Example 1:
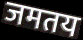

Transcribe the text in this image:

जमतय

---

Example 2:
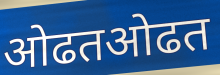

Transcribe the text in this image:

ओढतओढत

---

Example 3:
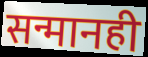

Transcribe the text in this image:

सन्मानही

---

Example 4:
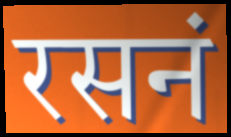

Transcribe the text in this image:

रसनं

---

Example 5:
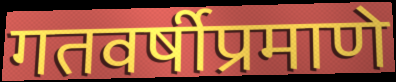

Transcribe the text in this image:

गतवर्षीप्रमाणे